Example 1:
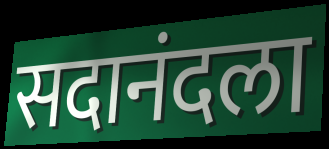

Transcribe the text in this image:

सदानंदला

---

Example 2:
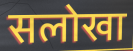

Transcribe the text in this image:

सलोखा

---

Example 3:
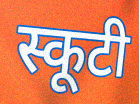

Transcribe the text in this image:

स्कूटी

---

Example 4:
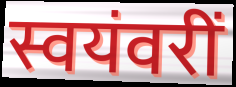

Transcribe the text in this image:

स्वयंवरीं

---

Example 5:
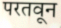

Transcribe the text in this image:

परतवून